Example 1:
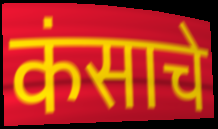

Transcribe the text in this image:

कंसाचे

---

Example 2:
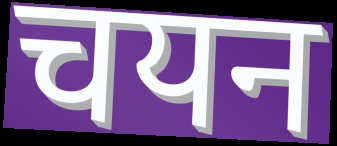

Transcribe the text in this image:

चयन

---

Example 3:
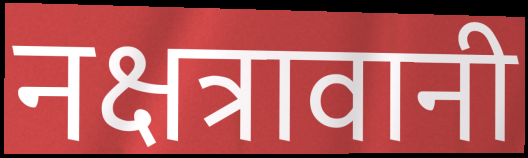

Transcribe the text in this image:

नक्षत्रावानी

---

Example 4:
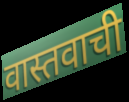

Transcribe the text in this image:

वास्तवाची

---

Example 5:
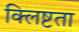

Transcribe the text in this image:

क्‍लिष्टता